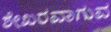
ಶೇಖರವಾಗುವ